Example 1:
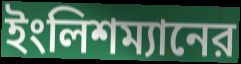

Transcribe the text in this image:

ইংলিশম্যানের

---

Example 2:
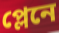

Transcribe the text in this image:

প্লেনে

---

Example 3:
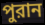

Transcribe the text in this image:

পুরান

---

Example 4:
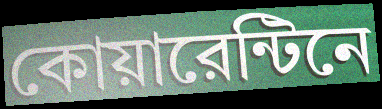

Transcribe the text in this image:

কোয়ারেন্টিনে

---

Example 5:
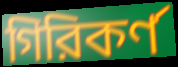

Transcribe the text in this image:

গিরিকর্ণ